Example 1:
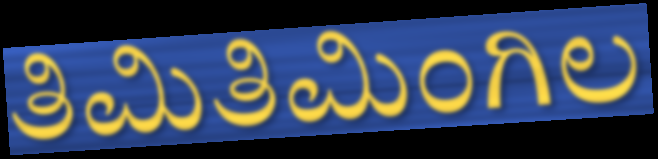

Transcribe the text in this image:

ತಿಮಿತಿಮಿಂಗಿಲ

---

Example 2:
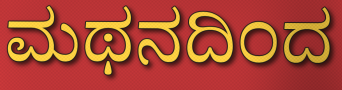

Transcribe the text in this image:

ಮಥನದಿಂದ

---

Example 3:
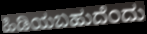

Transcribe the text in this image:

ಹಿಡಿಯಬಹುದೆಂದು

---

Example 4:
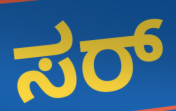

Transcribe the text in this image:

ಸರ್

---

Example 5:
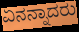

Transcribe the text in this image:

ಏನನ್ನಾದರು